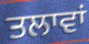
ਤਲਾਵਾਂ